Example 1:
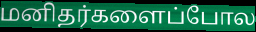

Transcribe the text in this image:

மனிதர்களைப்போல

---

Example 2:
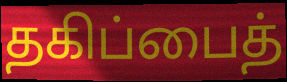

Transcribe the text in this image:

தகிப்பைத்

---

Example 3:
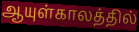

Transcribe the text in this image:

ஆயுள்காலத்தில்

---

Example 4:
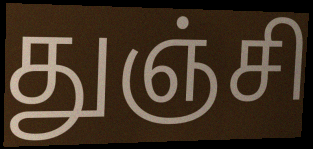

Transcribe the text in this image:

துஞ்சி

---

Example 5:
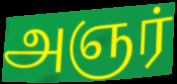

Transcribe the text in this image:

அஞர்